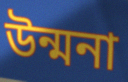
উন্মনা